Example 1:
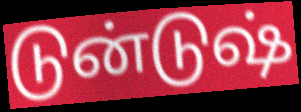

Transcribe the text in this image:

டுன்டுஷ்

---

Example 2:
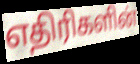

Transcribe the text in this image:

எதிரிகளின்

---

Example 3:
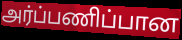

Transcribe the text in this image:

அர்ப்பணிப்பான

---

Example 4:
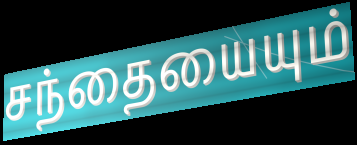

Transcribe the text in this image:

சந்தையையும்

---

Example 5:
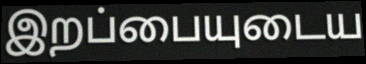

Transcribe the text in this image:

இறப்பையுடைய